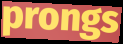
prongs